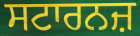
ਸਟਾਰਨਜ਼